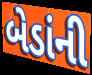
બેડાંની